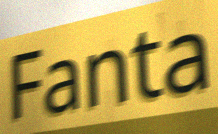
Fanta